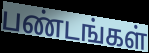
பண்டங்கள்